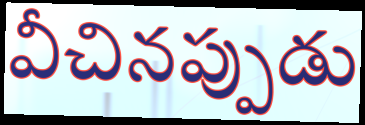
వీచినప్పుడు